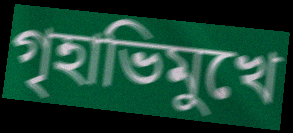
গৃহাভিমুখে